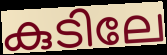
കുടിലേ